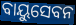
ବାୟୁସେବନ